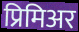
प्रिमिअर